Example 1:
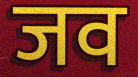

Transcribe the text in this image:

जव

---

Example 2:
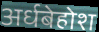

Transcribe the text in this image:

अर्धबेहोश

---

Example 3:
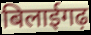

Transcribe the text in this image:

बिलाईगढ़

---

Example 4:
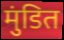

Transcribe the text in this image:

मुंडित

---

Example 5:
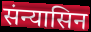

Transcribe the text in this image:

संन्यासिन